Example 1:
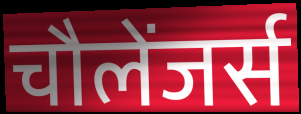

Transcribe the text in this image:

चौलेंजर्स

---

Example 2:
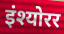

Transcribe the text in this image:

इंश्योरर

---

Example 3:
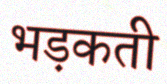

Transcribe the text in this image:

भड़कती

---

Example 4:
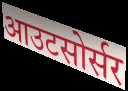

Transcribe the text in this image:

आउटसोर्सर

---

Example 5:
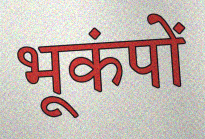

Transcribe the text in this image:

भूकंपों